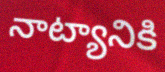
నాట్యానికి